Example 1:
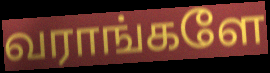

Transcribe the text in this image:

வராங்களே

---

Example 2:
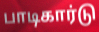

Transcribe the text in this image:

பாடிகார்டு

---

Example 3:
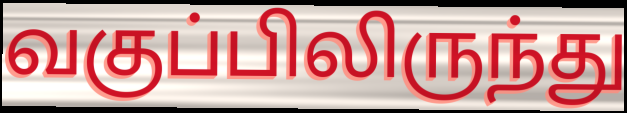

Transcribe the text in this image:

வகுப்பிலிருந்து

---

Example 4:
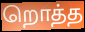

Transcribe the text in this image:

றொத்த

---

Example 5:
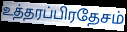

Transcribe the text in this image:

உத்தரப்பிரதேசம்